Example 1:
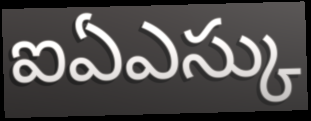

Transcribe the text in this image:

ఐఏఎస్కు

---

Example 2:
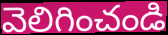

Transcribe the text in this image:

వెలిగించండి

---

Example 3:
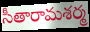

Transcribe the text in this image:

సీతారామశర్మ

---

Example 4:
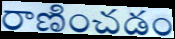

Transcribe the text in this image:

రాణించడం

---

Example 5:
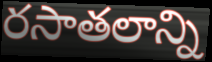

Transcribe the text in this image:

రసాతలాన్ని